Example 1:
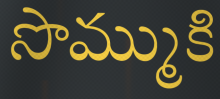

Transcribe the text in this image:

సొమ్ముకి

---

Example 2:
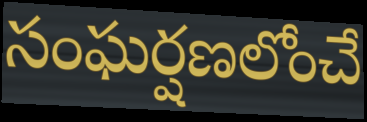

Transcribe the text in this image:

సంఘర్షణలోంచే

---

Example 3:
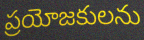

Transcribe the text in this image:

ప్రయోజకులను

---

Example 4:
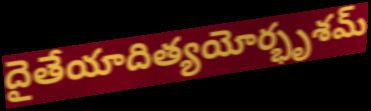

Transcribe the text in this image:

దైతేయాదిత్యయోర్భృశమ్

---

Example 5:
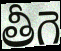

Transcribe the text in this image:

తీగె